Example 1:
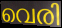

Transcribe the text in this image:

വെരി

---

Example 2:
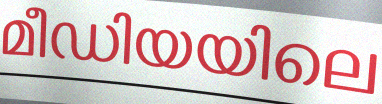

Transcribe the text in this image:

മീഡിയയിലെ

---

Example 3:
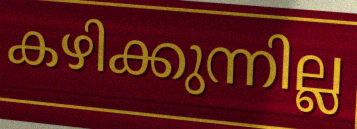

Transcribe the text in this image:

കഴിക്കുന്നില്ല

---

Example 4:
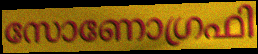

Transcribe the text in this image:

സോണോഗ്രഫി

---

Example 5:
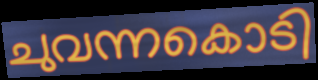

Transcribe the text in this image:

ചുവന്നകൊടി